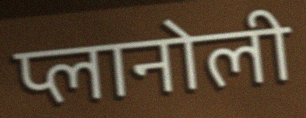
प्लानोली